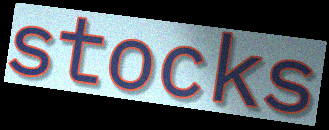
stocks